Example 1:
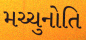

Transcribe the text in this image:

મચ્ચુનોતિ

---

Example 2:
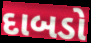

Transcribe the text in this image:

દાબડો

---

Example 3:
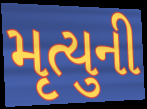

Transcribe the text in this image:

મૃત્યુની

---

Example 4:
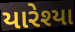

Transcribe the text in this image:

યારેશ્યા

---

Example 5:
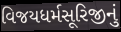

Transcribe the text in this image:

વિજયધર્મસૂરિજીનું